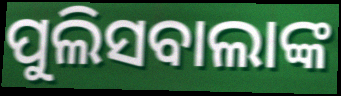
ପୁଲିସବାଲାଙ୍କ